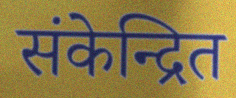
संकेन्द्रित